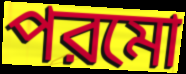
পরমো